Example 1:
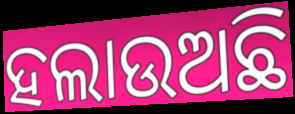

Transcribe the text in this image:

ହଲାଉଅଛି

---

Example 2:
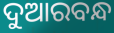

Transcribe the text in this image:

ଦୁଆରବନ୍ଧ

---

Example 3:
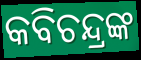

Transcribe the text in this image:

କବିଚନ୍ଦ୍ରଙ୍କ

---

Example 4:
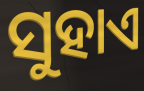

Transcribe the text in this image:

ସୁହାଏ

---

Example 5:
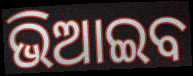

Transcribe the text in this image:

ଭିଆଇବ